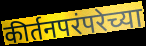
कीर्तनपरंपरेच्या